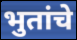
भुतांचे